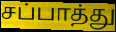
சப்பாத்து